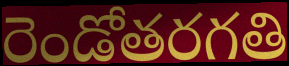
రెండోతరగతి